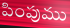
పింపుము